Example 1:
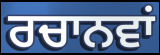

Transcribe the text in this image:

ਰਚਾਨਵਾਂ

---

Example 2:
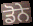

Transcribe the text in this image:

ਡੋਨੇ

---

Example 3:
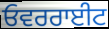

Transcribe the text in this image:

ਓਵਰਰਾਈਟ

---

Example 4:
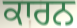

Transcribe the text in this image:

ਕਾਰਨ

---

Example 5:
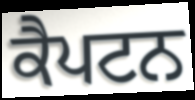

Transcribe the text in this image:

ਕੈਪਟਨ